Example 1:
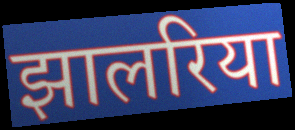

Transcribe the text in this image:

झालरिया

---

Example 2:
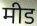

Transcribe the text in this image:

मीड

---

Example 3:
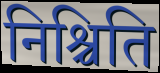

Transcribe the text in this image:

निश्चिति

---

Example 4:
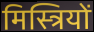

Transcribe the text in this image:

मिस्त्रियों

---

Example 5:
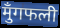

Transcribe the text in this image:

मुँगफली